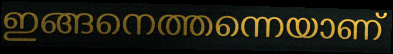
ഇങ്ങനെത്തന്നെയാണ്